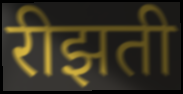
रीझती